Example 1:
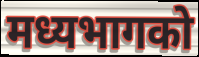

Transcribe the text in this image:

मध्यभागको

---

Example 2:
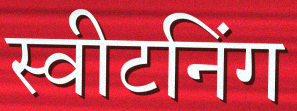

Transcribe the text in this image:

स्वीटनिंग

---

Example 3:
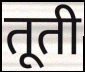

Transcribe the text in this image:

तूती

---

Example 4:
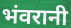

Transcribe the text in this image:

भंवरानी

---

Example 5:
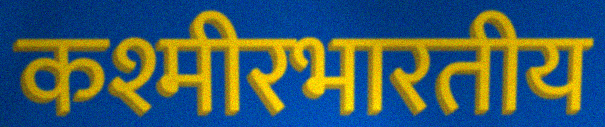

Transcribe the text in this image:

कश्मीरभारतीय